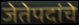
जेतेपदांचे